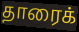
தாரைக்